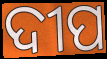
ଦୀପ